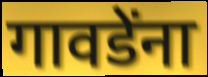
गावडेंना